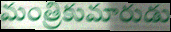
మంత్రికుమారుడు